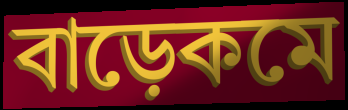
বাড়েকমে